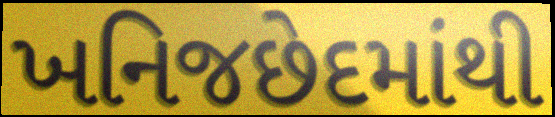
ખનિજછેદમાંથી